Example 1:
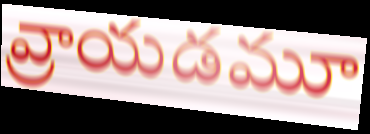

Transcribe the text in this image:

వ్రాయడమూ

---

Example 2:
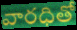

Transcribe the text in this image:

వారధితో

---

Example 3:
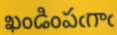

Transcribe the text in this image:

ఖండింపఁగాఁ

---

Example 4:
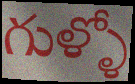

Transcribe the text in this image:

గుళ్ళో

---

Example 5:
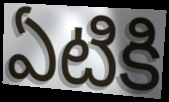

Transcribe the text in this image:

ఏటికి